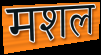
मशल